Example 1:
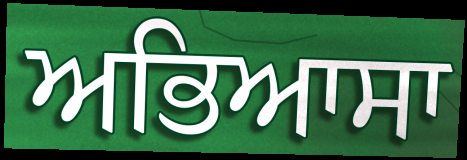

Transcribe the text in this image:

ਅਭਿਆਸਾ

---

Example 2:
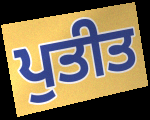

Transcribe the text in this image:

ਪੁਤੀਤ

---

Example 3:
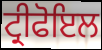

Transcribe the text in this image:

ਟ੍ਰੀਫੋਇਲ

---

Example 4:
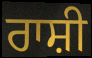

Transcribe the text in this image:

ਰਾਸ਼ੀ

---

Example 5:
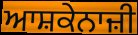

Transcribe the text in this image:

ਆਸ਼ਕੇਨਾਜ਼ੀ